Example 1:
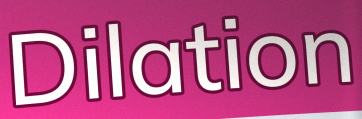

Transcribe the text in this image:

Dilation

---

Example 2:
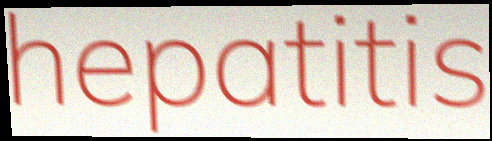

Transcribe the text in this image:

hepatitis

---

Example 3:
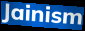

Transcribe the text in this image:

Jainism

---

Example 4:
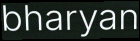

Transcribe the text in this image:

bharyan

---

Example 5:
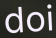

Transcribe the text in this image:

doi